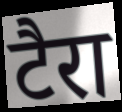
टैरा